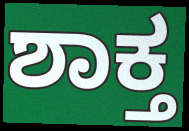
ಶಾಕ್ತ